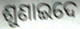
ଶୁଣାଇଦେ